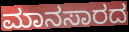
ಮಾನಸಾರದ